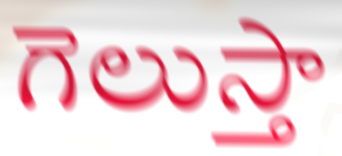
గెలుస్తా